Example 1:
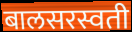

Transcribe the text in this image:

बालसरस्वती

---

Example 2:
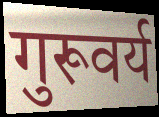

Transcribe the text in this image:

गुरूवर्य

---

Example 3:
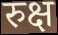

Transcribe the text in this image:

रुक्ष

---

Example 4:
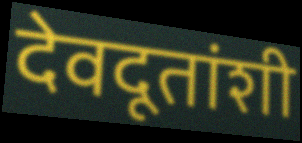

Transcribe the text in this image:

देवदूतांशी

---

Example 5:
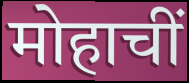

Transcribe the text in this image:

मोहाचीं